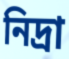
নিদ্ৰা